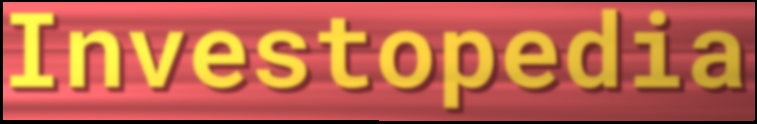
Investopedia